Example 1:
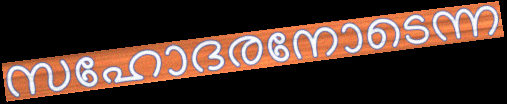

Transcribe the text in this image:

സഹോദരനോടെന്ന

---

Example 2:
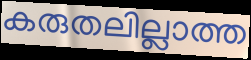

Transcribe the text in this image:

കരുതലില്ലാത്ത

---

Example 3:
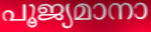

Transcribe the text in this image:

പൂജ്യമാനാ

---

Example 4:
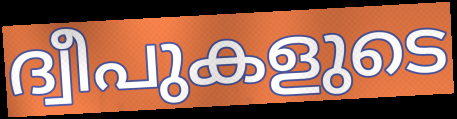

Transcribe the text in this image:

ദ്വീപുകളുടെ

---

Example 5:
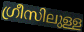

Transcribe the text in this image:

ഗ്രീസിലുള്ള